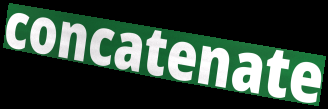
concatenate